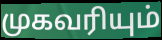
முகவரியும்